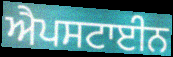
ਐਪਸਟਾਈਨ